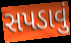
સપડાવું